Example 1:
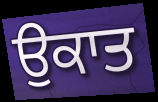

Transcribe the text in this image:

ਉਕਾਤ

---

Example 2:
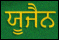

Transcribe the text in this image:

ਯੂਜੈਨ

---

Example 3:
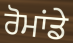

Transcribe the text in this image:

ਰੋਮਾਂਡੇ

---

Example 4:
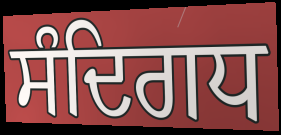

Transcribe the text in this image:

ਸੰਦਿਗਧ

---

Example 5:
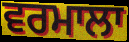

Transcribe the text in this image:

ਵਰਮਾਲਾ